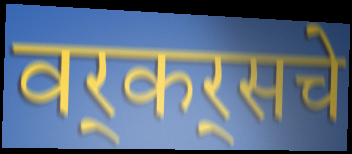
वर्कर्सचे